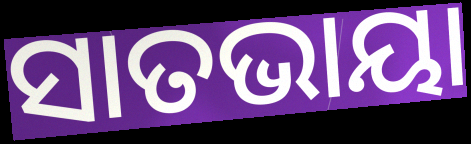
ସାତଭାୟା